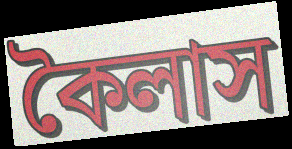
কৈলাস